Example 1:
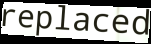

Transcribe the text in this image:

replaced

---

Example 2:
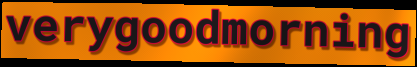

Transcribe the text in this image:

verygoodmorning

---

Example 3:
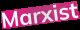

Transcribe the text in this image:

Marxist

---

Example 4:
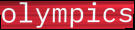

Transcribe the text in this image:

olympics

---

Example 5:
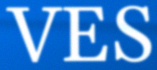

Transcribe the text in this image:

VES